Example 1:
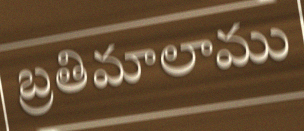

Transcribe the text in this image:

బ్రతిమాలాము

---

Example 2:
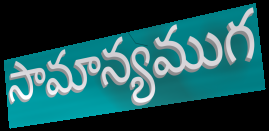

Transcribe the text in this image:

సామాన్యముగ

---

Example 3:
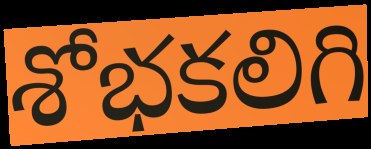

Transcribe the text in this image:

శోభకలిగి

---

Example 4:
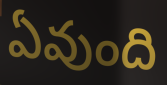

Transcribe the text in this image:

ఏవుంది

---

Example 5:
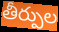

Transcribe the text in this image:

తీర్పుల